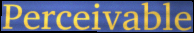
Perceivable